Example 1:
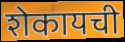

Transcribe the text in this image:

शेकायची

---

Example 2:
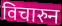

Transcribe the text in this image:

विचारुन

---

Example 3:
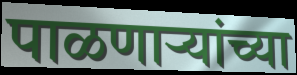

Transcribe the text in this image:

पाळणाऱ्यांच्या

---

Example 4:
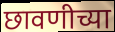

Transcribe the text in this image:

छावणीच्या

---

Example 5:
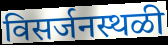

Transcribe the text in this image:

विसर्जनस्थळी